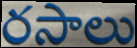
రసాలు